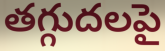
తగ్గుదలపై